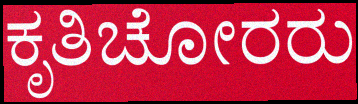
ಕೃತಿಚೋರರು